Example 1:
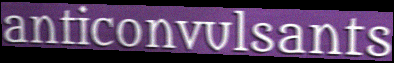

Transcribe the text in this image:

anticonvulsants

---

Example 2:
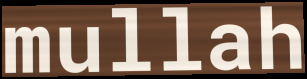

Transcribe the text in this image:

mullah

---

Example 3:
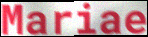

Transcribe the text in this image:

Mariae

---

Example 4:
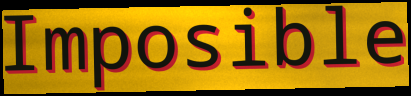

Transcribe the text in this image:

Imposible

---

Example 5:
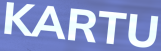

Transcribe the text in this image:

KARTU